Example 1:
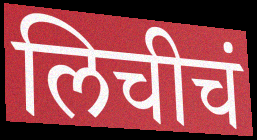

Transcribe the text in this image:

लिचीचं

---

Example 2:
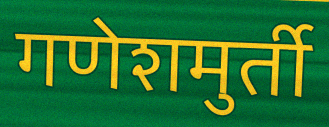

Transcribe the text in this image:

गणेशमुर्ती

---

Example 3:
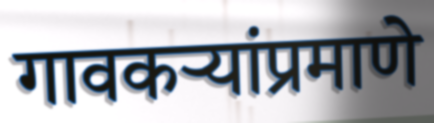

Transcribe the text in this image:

गावकऱ्यांप्रमाणे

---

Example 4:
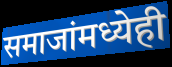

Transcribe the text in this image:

समाजांमध्येही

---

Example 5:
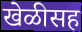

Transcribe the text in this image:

खेळीसह